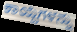
ಕಾಯ್ದೆಗಳನ್ನು